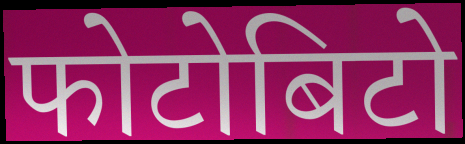
फोटोबिटो